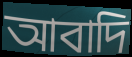
আবাদি